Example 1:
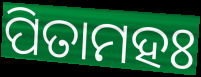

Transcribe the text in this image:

ପିତାମହଃ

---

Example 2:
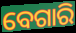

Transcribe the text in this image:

ବେଗାରି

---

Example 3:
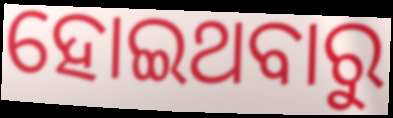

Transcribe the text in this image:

ହୋଇଥବାରୁ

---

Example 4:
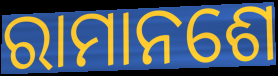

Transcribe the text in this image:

ରାମାନଶେ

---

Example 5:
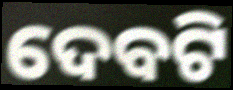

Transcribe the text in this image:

ଦେବଟି